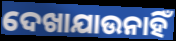
ଦେଖାଯାଉନାହିଁ